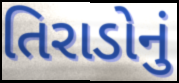
તિરાડોનું